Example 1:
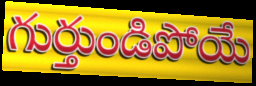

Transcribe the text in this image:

గుర్తుండిపోయే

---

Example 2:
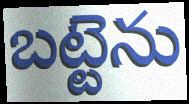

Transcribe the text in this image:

బట్టెను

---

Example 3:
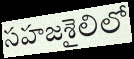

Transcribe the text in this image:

సహజశైలిలో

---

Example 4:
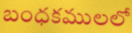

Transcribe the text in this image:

బంధకములలో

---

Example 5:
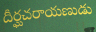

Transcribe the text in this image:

దీర్ఘచరాయణుడు